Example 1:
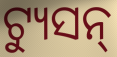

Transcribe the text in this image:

ଟ୍ୟୁସନ୍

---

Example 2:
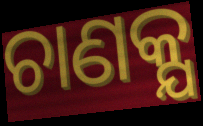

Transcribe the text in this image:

ଚାଣକ୍ଯ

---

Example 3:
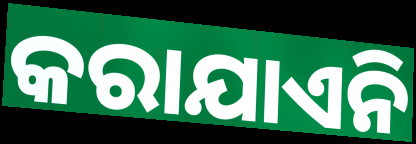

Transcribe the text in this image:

କରାଯାଏନି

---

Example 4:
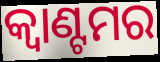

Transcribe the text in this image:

କ୍ୱାଣ୍ଟମର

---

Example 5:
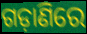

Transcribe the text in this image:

ଗଡ଼ାଣିରେ